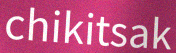
chikitsak